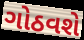
ગોઠવશે